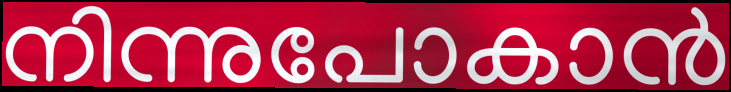
നിന്നുപോകാൻ